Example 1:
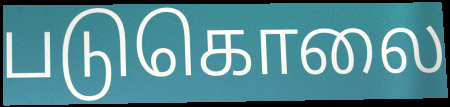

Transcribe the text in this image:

படுகொலை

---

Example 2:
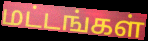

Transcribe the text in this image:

மட்டங்கள்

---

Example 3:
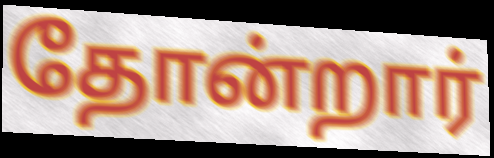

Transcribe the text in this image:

தோன்றார்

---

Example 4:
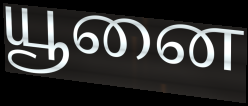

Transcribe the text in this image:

யூனை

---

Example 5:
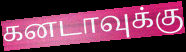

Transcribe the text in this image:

கனடாவுக்கு